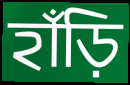
হাঁড়ি